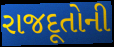
રાજદૂતોની